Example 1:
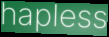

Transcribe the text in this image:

hapless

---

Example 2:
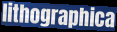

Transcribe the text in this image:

lithographica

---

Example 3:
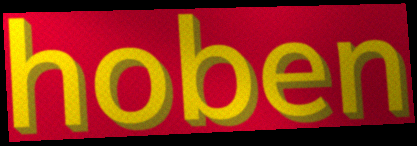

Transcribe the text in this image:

hoben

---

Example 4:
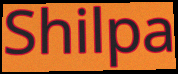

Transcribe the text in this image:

Shilpa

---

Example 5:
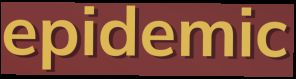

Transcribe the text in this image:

epidemic